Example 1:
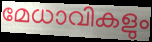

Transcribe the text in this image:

മേധാവികളും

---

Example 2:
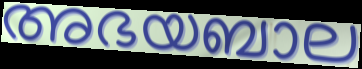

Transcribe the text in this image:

അഭയബാല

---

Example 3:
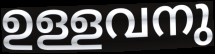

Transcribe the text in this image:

ഉള്ളവനു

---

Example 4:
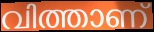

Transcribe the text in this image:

വിത്താണ്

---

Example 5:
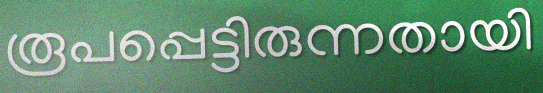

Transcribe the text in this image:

രൂപപ്പെട്ടിരുന്നതായി